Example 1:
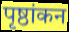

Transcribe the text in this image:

पृष्ठांकन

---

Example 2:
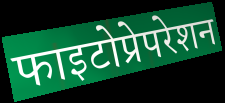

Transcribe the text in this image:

फाइटोप्रेपरेशन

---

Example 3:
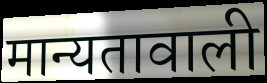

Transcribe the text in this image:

मान्यतावाली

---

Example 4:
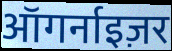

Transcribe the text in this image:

ऑगर्नाइज़र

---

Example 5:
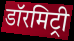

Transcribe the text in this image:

डॉरमिट्री